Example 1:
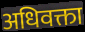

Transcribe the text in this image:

अधिवक्ता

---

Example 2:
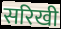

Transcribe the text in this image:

सरिखी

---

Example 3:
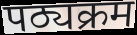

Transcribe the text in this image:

पठ्यक्रम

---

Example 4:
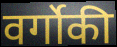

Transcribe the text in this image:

वर्गोकी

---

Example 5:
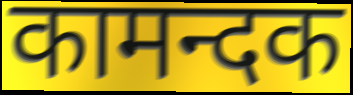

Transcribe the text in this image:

कामन्दक